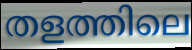
തളത്തിലെ